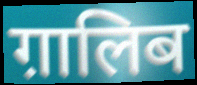
ग़ालिब